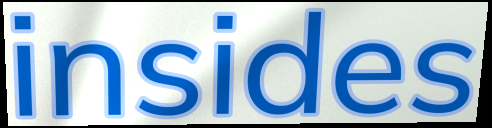
insides